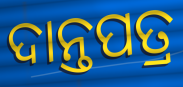
ଦାନ୍ତପତ୍ର